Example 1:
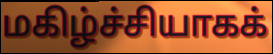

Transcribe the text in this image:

மகிழ்ச்சியாகக்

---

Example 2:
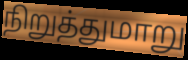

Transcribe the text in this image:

நிறுத்துமாறு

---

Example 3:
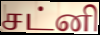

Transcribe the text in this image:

சட்னி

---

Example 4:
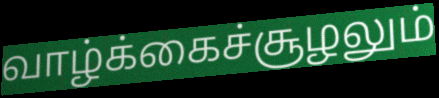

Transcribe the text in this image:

வாழ்க்கைச்சூழலும்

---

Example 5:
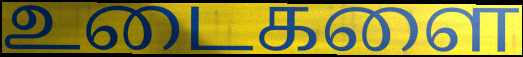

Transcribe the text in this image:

உடைகளை